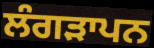
ਲੰਗੜਾਪਨ